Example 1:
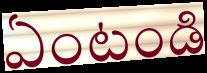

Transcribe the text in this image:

ఏంటండి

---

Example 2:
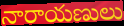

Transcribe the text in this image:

నారాయణులు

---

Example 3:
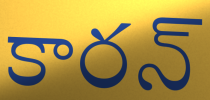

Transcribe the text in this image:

కారన్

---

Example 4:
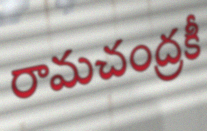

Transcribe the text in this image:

రామచంద్రకీ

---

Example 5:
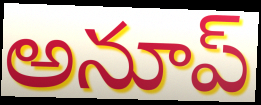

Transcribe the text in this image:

అనూప్